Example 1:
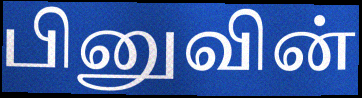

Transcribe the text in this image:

பினுவின்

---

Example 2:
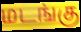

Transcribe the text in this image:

மடங்கு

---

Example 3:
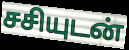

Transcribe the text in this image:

சசியுடன்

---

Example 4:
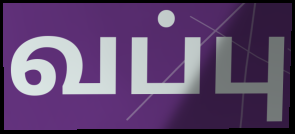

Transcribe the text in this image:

வப்பு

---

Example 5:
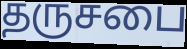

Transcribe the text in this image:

தருசபை